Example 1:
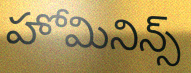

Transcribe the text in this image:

హోమినిన్స్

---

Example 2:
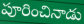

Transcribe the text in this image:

పూరించినాడు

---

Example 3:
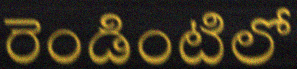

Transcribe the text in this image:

రెండింటిలో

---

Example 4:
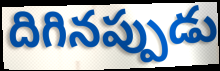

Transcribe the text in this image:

దిగినప్పుడు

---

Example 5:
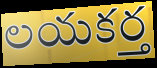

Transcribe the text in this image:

లయకర్త